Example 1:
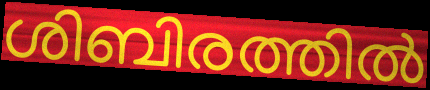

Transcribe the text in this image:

ശിബിരത്തിൽ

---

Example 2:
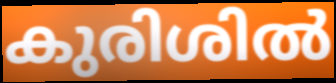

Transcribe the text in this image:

കുരിശിൽ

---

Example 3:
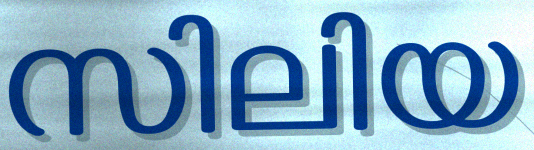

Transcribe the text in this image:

സിലിയ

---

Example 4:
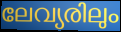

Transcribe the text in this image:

ലേവ്യരിലും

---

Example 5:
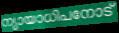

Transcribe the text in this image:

ന്യായാധിപനോട്